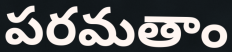
పరమతాం